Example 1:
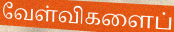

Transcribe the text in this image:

வேள்விகளைப்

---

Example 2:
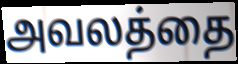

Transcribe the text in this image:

அவலத்தை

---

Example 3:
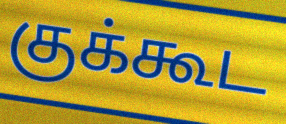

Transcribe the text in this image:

குக்கூட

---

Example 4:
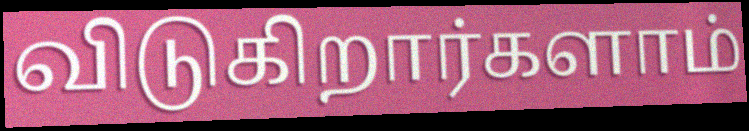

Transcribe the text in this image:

விடுகிறார்களாம்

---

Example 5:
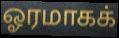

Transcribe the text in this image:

ஓரமாகக்